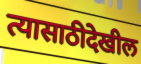
त्यासाठीदेखील